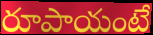
రూపాయంటే